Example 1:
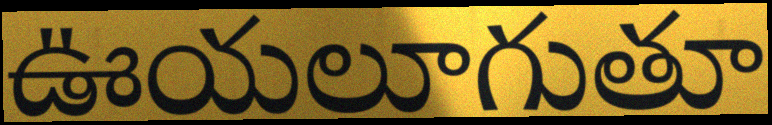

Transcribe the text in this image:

ఊయలూగుతూ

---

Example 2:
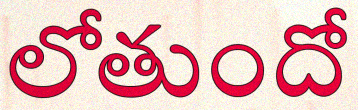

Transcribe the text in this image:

లోతుందో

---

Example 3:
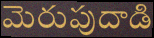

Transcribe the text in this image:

మెరుపుదాడి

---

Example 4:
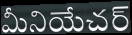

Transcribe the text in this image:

మీనియేచర్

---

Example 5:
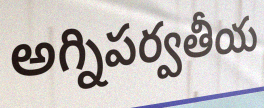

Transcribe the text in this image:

అగ్నిపర్వతీయ